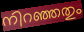
നിറഞ്ഞതും